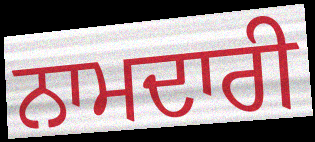
ਨਾਮਦਾਰੀ